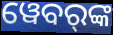
ୱେବର୍‌ଙ୍କ